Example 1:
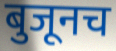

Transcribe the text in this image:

बुजूनच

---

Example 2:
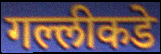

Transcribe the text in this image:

गल्लीकडे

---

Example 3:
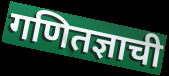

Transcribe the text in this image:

गणितज्ञाची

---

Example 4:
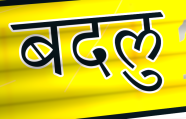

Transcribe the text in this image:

बदलु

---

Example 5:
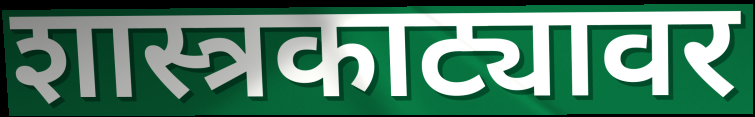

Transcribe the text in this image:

शास्त्रकाट्यावर